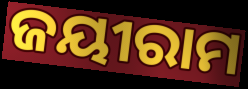
ଜୟୀରାମ